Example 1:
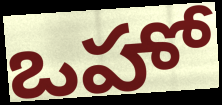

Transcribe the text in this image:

ఒహో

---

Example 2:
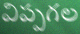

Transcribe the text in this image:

విప్పగల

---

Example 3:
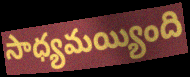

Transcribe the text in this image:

సాధ్యమయ్యింది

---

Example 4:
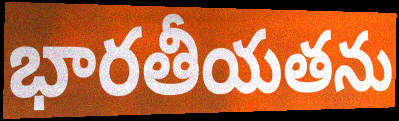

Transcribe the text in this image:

భారతీయతను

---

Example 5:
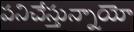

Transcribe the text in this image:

పనిచేస్తున్నాయో